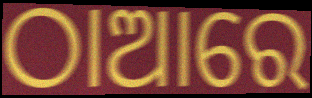
ଠାଆରେ